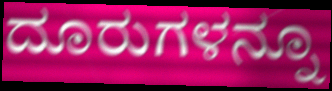
ದೂರುಗಳನ್ನೂ